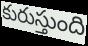
కురుస్తుంది